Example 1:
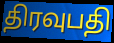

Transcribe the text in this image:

திரவுபதி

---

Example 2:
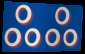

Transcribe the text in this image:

ஃஃ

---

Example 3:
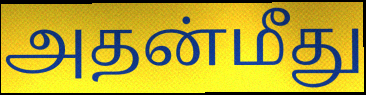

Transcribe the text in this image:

அதன்மீது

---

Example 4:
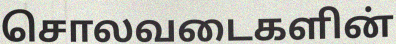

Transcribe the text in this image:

சொலவடைகளின்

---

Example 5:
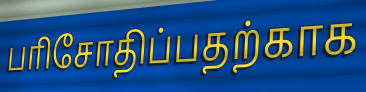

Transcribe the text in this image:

பரிசோதிப்பதற்காக